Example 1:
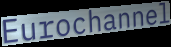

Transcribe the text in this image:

Eurochannel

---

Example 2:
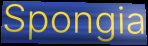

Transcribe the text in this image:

Spongia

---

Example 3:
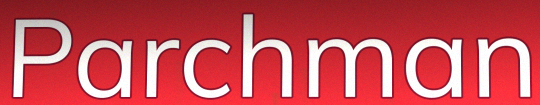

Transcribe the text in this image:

Parchman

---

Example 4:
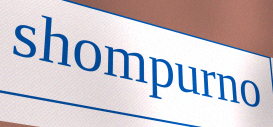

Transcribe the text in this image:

shompurno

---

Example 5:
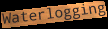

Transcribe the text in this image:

Waterlogging